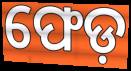
ଫେଡ଼